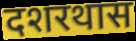
दशरथास